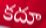
కదూ